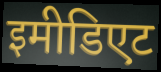
इमीडिएट